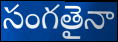
సంగతైనా